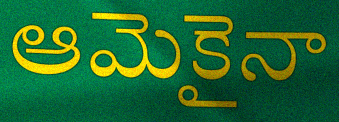
ఆమెకైనా